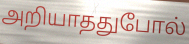
அறியாததுபோல்